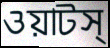
ওয়াটস্